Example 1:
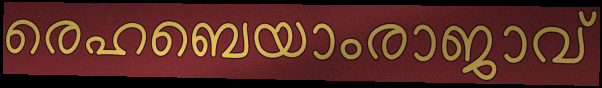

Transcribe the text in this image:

രെഹബെയാംരാജാവ്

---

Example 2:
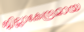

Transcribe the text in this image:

ജില്ലാകേന്ദ്രമായ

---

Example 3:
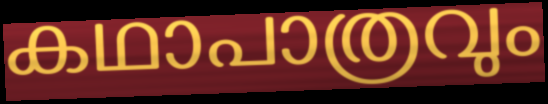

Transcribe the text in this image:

കഥാപാത്രവും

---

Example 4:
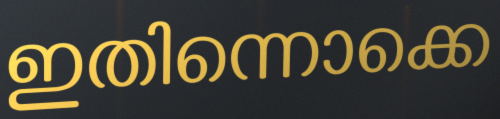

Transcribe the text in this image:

ഇതിന്നൊക്കെ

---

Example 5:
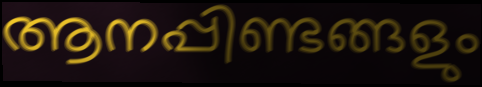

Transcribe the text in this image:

ആനപ്പിണ്ടങ്ങളും